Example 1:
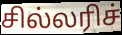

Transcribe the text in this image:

சில்லரிச்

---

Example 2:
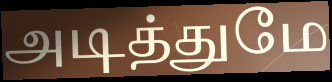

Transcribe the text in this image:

அடித்துமே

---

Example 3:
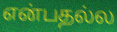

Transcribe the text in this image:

என்பதல்ல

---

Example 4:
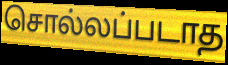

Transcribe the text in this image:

சொல்லப்படாத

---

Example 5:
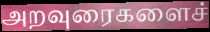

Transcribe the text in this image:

அறவுரைகளைச்